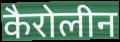
कैरोलीन